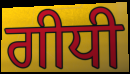
ਗੀਧੀ